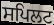
ਸਪਿਲਟ